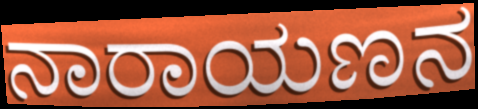
ನಾರಾಯಣನ